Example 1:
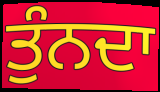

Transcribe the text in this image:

ਤੁੰਨਦਾ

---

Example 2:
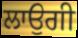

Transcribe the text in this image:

ਲਾਉਗੀ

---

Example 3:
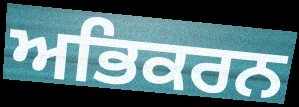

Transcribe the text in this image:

ਅਭਿਕਰਨ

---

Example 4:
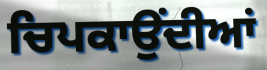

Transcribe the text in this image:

ਚਿਪਕਾਉਂਦੀਆਂ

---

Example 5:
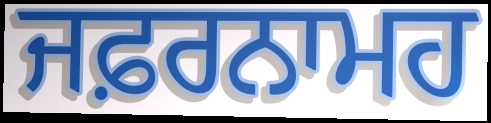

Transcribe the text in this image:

ਜਫ਼ਰਨਾਮਹ